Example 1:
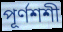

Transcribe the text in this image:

পূর্ণশশী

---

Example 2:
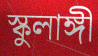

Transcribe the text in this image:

স্কুলাঙ্গী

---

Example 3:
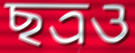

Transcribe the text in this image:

ছত্রও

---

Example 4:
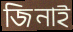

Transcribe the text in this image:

জিনাই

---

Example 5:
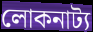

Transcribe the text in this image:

লোকনাট্য